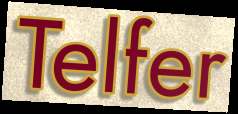
Telfer